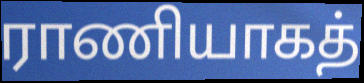
ராணியாகத்